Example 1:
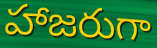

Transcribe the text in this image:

హాజరుగా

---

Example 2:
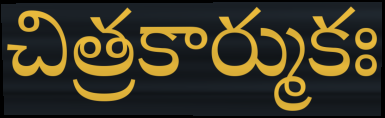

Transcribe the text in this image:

చిత్రకార్ముకః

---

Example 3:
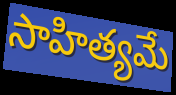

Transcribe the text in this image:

సాహిత్యమే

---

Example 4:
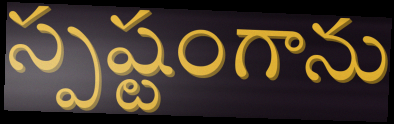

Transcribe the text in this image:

స్పష్టంగాను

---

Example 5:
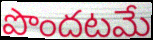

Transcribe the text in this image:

పొందటమే